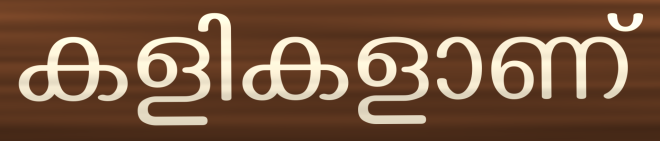
കളികളാണ്